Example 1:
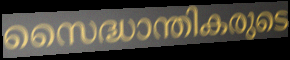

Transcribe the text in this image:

സൈദ്ധാന്തികരുടെ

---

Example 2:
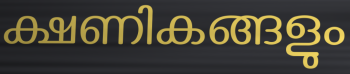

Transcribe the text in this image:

ക്ഷണികങ്ങളും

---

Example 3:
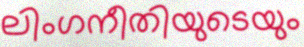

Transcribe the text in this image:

ലിംഗനീതിയുടെയും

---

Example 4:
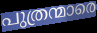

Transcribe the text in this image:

പുത്രന്മാരെ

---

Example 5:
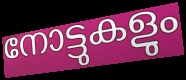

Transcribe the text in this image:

നോട്ടുകളും